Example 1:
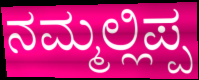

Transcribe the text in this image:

ನಮ್ಮಲ್ಲಿಪ್ಪ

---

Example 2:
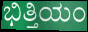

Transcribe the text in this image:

ಭಿತ್ತಿಯಂ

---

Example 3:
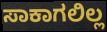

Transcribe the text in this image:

ಸಾಕಾಗಲಿಲ್ಲ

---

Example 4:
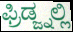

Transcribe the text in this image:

ಫ್ರಿಡ್ಜ್ನಲ್ಲಿ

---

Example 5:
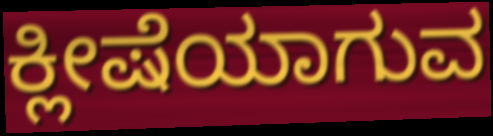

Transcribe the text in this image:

ಕ್ಲೀಷೆಯಾಗುವ